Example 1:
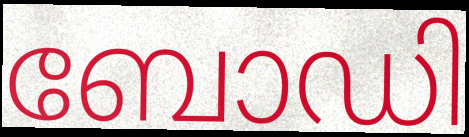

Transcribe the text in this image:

ബോഡി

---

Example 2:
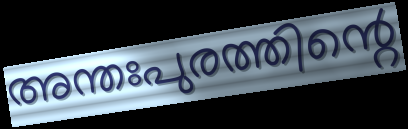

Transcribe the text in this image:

അന്തഃപുരത്തിന്റെ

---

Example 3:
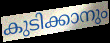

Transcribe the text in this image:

കുടിക്കാനും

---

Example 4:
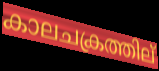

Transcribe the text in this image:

കാലചക്രത്തില്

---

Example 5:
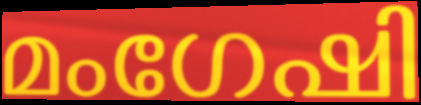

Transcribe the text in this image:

മംഗേഷി